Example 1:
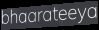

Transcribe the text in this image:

bhaarateeya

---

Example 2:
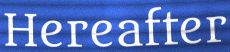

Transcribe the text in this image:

Hereafter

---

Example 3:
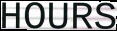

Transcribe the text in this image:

HOURS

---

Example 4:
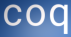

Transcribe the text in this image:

coq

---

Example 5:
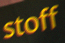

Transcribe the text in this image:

stoff